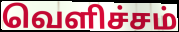
வெளிச்சம்